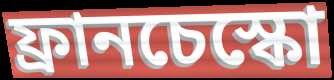
ফ্রানচেস্কো